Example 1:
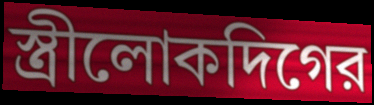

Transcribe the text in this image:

স্ত্রীলোকদিগের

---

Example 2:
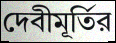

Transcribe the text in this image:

দেবীমূর্তির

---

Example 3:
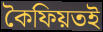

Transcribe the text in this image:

কৈফিয়তই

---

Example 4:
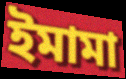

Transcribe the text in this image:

ইমামা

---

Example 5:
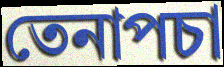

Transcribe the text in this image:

তেনাপচা